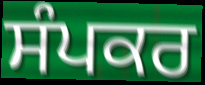
ਸੰਪਕਰ